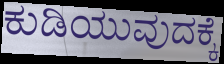
ಕುಡಿಯುವುದಕ್ಕೆ